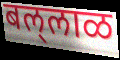
बल्लाळ